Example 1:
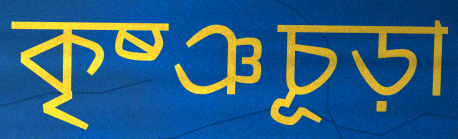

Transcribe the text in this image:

কৃষ্ঞচূড়া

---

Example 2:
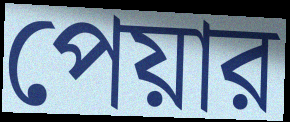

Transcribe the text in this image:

পেয়ার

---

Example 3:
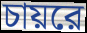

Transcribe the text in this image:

চায়রে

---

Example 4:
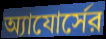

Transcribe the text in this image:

অ্যাযোর্সের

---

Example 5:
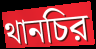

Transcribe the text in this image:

থানচির